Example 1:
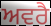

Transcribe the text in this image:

ਅਵਰੈ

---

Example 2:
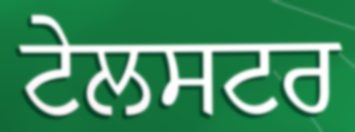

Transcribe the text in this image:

ਟੇਲਸਟਰ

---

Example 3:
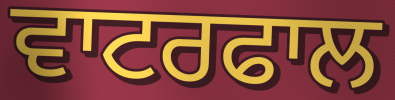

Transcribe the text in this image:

ਵਾਟਰਫਾਲ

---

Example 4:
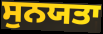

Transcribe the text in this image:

ਸੁਨਯਤਾ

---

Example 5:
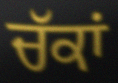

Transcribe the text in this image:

ਚੱਕਾਂ